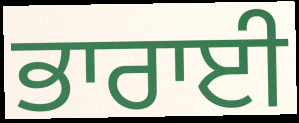
ਭਾਰਾਈ